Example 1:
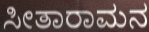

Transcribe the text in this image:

ಸೀತಾರಾಮನ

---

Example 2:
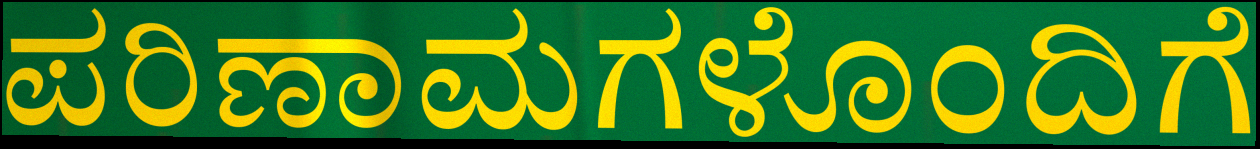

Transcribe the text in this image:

ಪರಿಣಾಮಗಳೊಂದಿಗೆ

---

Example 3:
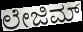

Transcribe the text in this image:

ಲೇಜಿಮ್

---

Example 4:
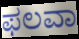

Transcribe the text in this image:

ಫಲವಾ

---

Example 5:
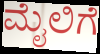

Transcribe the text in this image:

ಮೈಲಿಗೆ